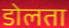
डोलता